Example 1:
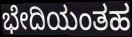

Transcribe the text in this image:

ಭೇದಿಯಂತಹ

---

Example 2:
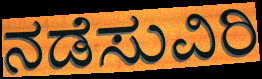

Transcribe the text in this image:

ನಡೆಸುವಿರಿ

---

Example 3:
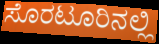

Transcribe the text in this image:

ಸೊರಟೂರಿನಲ್ಲಿ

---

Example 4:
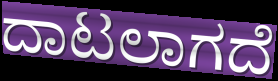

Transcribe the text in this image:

ದಾಟಲಾಗದೆ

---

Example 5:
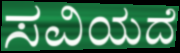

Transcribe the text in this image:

ಸವಿಯದೆ